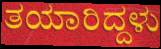
ತಯಾರಿದ್ದಳು